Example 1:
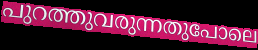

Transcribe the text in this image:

പുറത്തുവരുന്നതുപോലെ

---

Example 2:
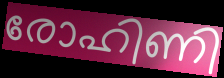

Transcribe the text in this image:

രോഹിണി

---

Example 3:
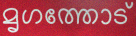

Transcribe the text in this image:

മൃഗത്തോട്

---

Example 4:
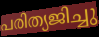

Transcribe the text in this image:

പരിത്യജിച്ചു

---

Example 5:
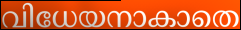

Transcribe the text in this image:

വിധേയനാകാതെ